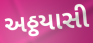
અઠ્ઠયાસી